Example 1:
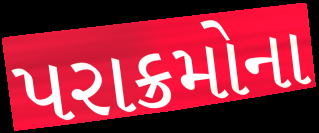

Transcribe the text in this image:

પરાક્રમોના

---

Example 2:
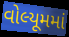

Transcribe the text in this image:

વોલ્યૂમમાં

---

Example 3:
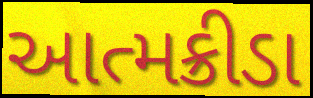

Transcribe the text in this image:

આત્મક્રીડા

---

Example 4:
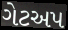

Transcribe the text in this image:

ગેટઅપ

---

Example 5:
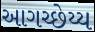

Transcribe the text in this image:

આગચ્છેય્ય